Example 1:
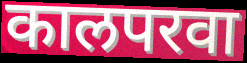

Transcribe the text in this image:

कालपरवा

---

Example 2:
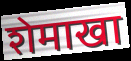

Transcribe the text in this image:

शेमाखा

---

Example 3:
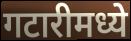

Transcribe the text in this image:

गटारीमध्ये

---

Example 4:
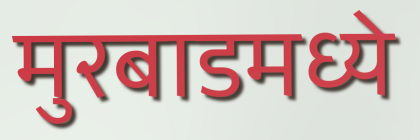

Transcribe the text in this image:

मुरबाडमध्ये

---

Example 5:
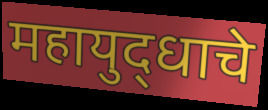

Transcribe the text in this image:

महायुद्धाचे